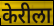
केरीला